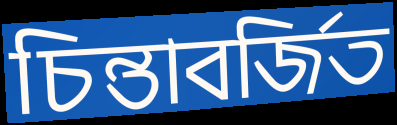
চিন্তাবর্জিত